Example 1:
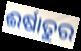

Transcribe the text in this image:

ଈର୍ଷାତୁର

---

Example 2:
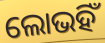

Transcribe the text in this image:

ଲୋଭହିଁ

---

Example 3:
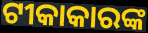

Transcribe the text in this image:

ଟୀକାକାରଙ୍କ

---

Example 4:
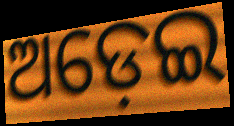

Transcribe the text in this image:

ଅଡ଼େଇ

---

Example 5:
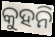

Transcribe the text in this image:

କୁହନି